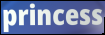
princess